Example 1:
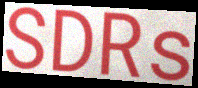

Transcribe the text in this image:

SDRs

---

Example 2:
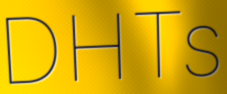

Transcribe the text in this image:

DHTs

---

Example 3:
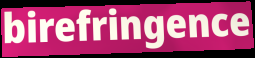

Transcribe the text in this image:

birefringence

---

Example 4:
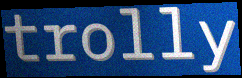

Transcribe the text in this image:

trolly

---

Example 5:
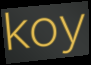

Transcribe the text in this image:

koy